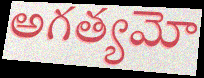
అగత్యమో